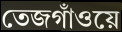
তেজগাঁওয়ে